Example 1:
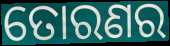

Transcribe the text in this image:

ତୋରଣର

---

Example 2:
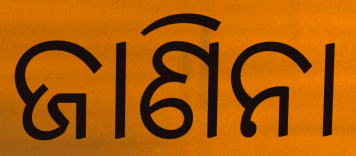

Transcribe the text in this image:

ଜାଣିନା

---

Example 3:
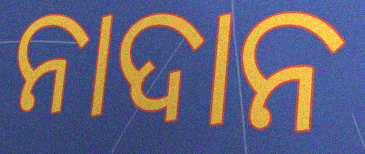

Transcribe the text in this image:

ନାଦାନ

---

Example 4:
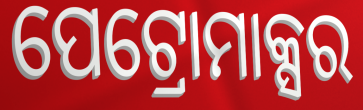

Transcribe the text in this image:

ପେଟ୍ରୋମାକ୍ସର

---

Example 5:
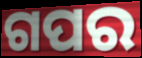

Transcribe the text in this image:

ଗପର